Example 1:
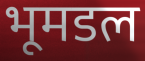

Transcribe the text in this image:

भूमडल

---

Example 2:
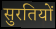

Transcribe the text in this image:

सुरतियों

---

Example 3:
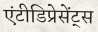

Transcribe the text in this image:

एंटीडिप्रेसेंट्स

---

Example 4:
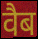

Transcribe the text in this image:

वैब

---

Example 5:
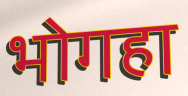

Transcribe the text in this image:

भोगहा